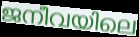
ജനീവയിലെ